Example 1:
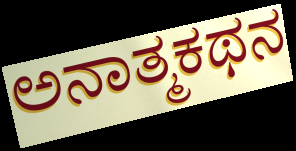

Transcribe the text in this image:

ಅನಾತ್ಮಕಥನ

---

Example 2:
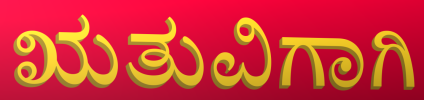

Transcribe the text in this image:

ಋತುವಿಗಾಗಿ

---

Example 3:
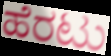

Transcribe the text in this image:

ಹೆರಟು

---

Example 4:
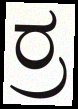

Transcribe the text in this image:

ರ್ರ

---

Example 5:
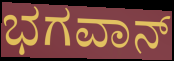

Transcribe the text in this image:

ಭಗವಾನ್